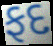
ફદ